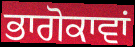
ਭਾਗੋਕਾਵਾਂ